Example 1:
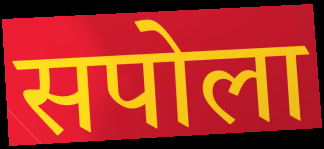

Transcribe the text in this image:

सपोला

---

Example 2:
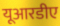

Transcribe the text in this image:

यूआरडीए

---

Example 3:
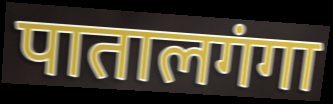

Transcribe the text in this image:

पातालगंगा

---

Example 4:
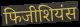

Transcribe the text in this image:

फिजीशियंस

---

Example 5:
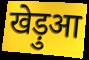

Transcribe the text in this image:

खेड़ुआ